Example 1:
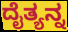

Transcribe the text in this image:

ದೈತ್ಯನ್ನ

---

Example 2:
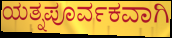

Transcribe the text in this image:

ಯತ್ನಪೂರ್ವಕವಾಗಿ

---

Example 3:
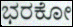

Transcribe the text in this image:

ಭರಕೋ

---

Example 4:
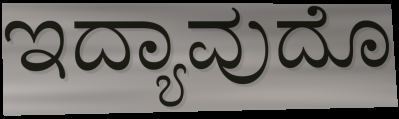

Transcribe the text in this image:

ಇದ್ಯಾವುದೊ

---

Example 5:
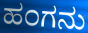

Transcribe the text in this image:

ಹಂಗನು